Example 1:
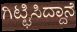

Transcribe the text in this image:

ಗಿಟ್ಟಿಸಿದ್ದಾನೆ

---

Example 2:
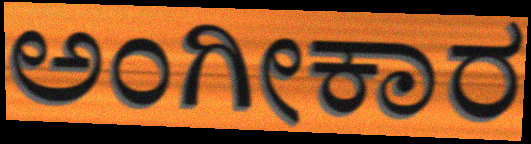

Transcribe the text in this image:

ಅಂಗೀಕಾರ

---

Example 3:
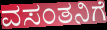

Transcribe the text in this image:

ವಸಂತನಿಗೆ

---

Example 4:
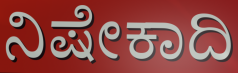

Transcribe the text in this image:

ನಿಷೇಕಾದಿ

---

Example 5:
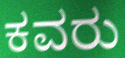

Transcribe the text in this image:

ಕವರು